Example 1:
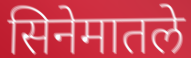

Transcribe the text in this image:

सिनेमातले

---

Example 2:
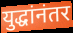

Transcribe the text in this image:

युद्धांनंतर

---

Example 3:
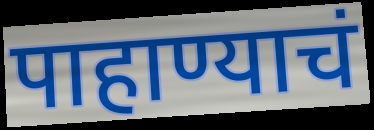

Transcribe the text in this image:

पाहाण्याचं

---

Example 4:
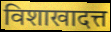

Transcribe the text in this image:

विशाखादत्त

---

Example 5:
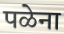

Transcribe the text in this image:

पळेना